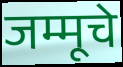
जम्मूचे